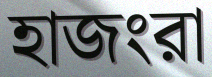
হাজংরা